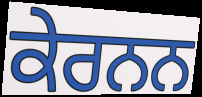
ਕੇਰਨਨ